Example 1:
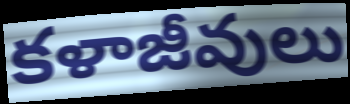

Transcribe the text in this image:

కళాజీవులు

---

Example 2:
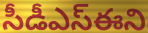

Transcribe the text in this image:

సీడీఎస్ఈని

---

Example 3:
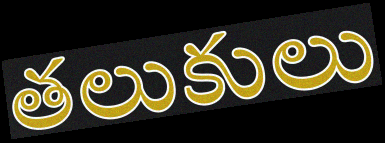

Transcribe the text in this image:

తలుకులు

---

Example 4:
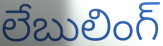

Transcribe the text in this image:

లేబులింగ్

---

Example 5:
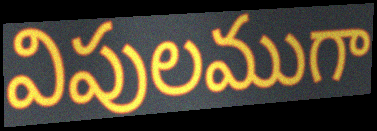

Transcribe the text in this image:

విపులముగా